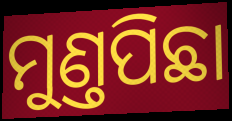
ମୁଣ୍ତପିଛା